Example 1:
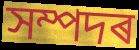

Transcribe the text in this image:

সম্পদৰ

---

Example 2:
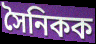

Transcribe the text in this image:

সৈনিকক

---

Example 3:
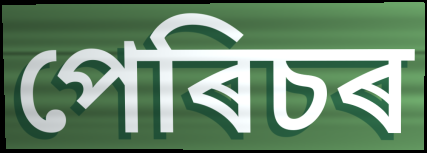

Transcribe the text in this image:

পেৰিচৰ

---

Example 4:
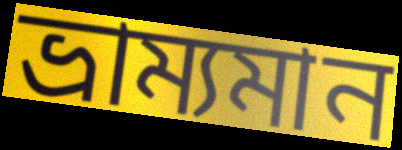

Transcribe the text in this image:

ভ্ৰাম্যমান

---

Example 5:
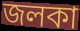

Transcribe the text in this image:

জলকা